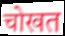
चोखत